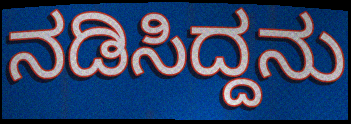
ನಡಿಸಿದ್ದನು